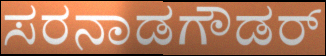
ಸರನಾಡಗೌಡರ್